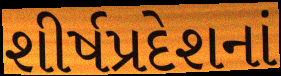
શીર્ષપ્રદેશનાં